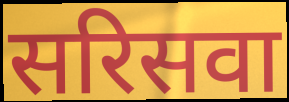
सरिसवा